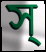
স্